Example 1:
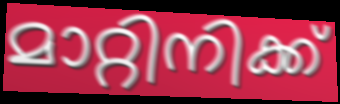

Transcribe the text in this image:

മാറ്റിനിക്ക്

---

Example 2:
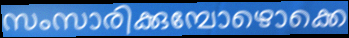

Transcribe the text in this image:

സംസാരിക്കുമ്പോഴൊക്കെ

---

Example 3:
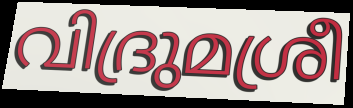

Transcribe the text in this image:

വിദ്രുമശ്രീ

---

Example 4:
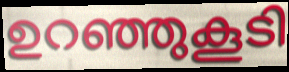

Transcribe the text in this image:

ഉറഞ്ഞുകൂടി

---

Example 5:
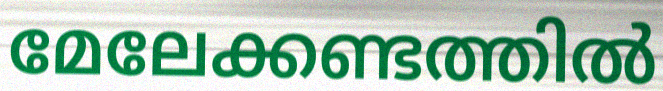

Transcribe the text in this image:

മേലേക്കണ്ടത്തിൽ